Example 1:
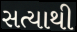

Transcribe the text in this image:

સત્યાથી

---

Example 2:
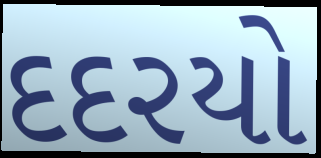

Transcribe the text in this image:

દદરયો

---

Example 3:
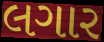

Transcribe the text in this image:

લગાર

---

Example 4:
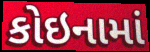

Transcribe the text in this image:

કોઇનામાં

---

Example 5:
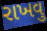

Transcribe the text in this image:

રાખવુ